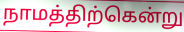
நாமத்திற்கென்று